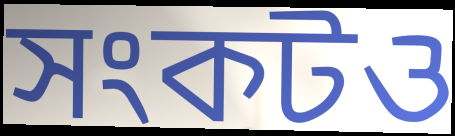
সংকটও